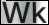
Wk